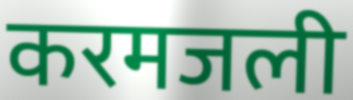
करमजली